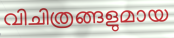
വിചിത്രങ്ങളുമായ